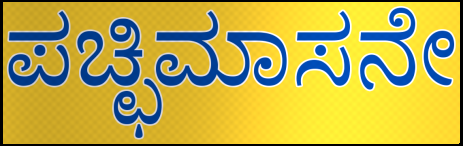
ಪಚ್ಛಿಮಾಸನೇ